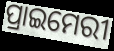
ପ୍ରାଇମେରୀ